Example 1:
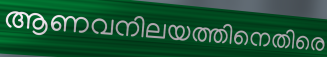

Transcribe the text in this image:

ആണവനിലയത്തിനെതിരെ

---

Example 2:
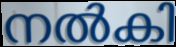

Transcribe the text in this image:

നൽകി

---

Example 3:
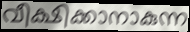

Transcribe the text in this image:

വീക്ഷിക്കാനാകുന്ന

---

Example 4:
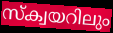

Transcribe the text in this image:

സ്ക്വയറിലും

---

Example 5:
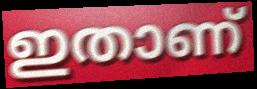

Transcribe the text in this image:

ഇതാണ്